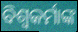
ବିଶ୍ୱକର୍ମାଙ୍କ